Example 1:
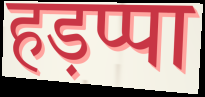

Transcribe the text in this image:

हड़प्पा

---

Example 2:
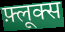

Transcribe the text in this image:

फ़्लूक्स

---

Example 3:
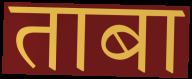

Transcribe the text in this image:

ताबा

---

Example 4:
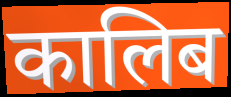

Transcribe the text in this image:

कालिब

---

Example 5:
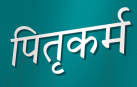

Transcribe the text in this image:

पितृकर्म